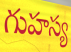
గుహస్య